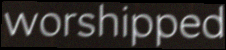
worshipped